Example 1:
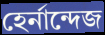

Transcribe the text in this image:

হের্নান্দেজ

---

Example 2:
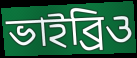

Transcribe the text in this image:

ভাইব্রিও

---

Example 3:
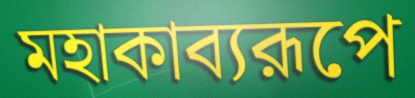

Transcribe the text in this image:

মহাকাব্যরূপে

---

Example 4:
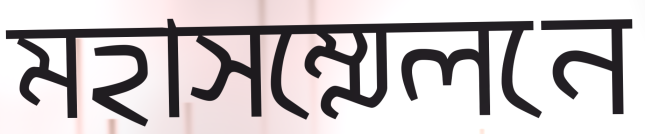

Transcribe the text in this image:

মহাসম্মেলনে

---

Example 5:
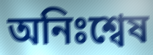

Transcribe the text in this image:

অনিঃশ্বেষ